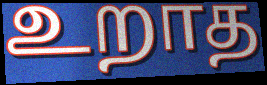
உறாத